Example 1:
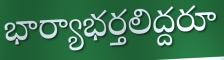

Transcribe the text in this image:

భార్యాభర్తలిద్దరూ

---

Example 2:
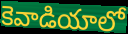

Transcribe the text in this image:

కెవాడియాలో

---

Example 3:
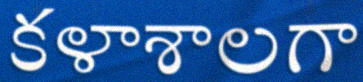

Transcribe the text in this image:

కళాశాలగా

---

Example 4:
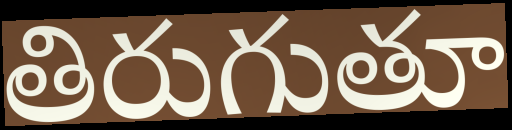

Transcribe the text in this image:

తిరుగుతూ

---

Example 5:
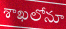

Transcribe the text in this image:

శాఖలోనూ